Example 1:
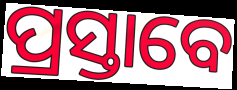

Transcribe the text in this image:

ପ୍ରସ୍ତାବେ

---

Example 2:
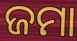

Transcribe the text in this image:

ଜମା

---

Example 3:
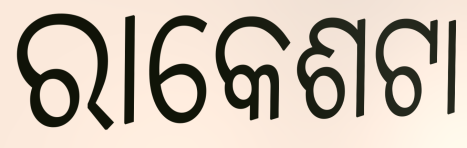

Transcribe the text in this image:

ରାକେଶଟା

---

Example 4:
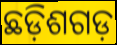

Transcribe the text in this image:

ଛଡ଼ିଶଗଡ଼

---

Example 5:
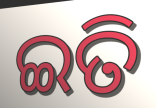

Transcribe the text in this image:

ଇତି